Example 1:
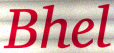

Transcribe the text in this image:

Bhel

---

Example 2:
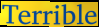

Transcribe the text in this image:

Terrible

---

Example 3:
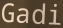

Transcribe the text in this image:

Gadi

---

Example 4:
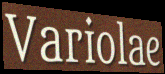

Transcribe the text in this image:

Variolae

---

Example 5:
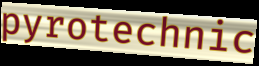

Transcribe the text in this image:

pyrotechnic